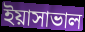
ইয়াসাভাল